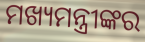
ମଖ୍ୟମନ୍ତ୍ରୀଙ୍କର